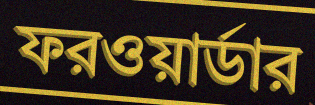
ফরওয়ার্ডার